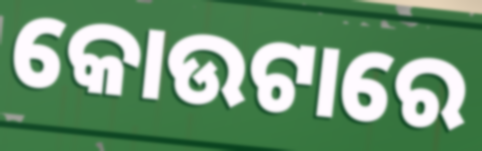
କୋଉଟାରେ